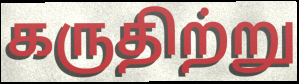
கருதிற்று